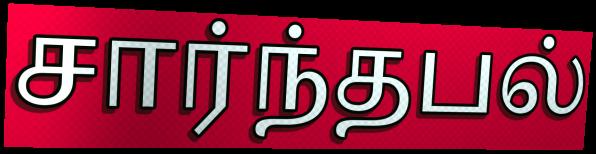
சார்ந்தபல்